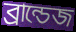
ব্রান্ডেজ